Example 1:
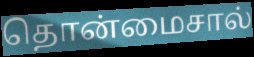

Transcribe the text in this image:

தொன்மைசால்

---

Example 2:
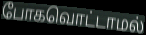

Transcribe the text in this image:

போகவொட்டாமல்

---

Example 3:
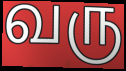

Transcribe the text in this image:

வரு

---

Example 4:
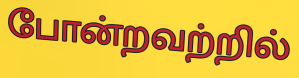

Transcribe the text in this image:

போன்றவற்றில்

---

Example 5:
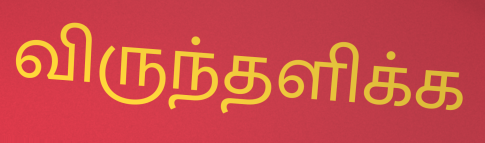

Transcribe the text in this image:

விருந்தளிக்க